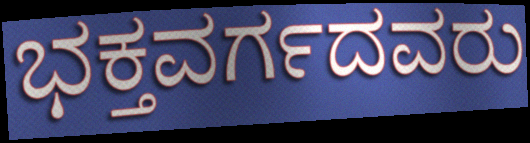
ಭಕ್ತವರ್ಗದವರು